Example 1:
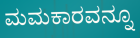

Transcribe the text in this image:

ಮಮಕಾರವನ್ನೂ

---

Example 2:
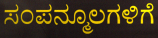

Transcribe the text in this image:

ಸಂಪನ್ಮೂಲಗಳಿಗೆ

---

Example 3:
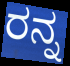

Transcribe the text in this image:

ರನ್ನ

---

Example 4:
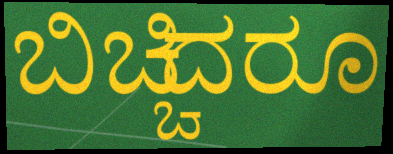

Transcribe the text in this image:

ಬಿಚ್ಚಿದರೂ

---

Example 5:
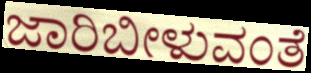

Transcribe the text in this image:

ಜಾರಿಬೀಳುವಂತೆ